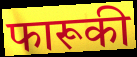
फारूकी